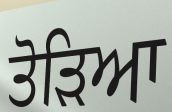
ਤੋਡ਼ਿਆ